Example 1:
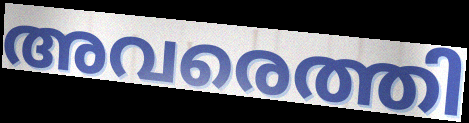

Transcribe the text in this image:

അവരെത്തി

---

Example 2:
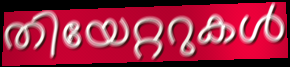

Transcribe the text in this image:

തിയേറ്ററുകൾ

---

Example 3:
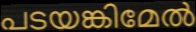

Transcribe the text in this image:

പടയങ്കിമേൽ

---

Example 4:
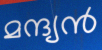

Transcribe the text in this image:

മന്ദ്യൻ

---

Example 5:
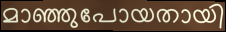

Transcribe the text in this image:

മാഞ്ഞുപോയതായി